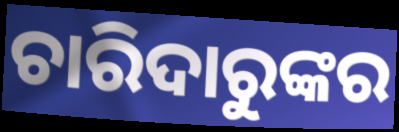
ଚାରିଦାରୁଙ୍କର